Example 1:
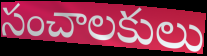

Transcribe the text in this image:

సంచాలకులు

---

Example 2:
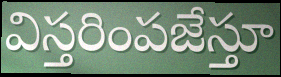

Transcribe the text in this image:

విస్తరింపజేస్తూ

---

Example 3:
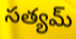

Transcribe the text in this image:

సత్యమ్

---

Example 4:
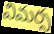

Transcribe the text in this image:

విమర్స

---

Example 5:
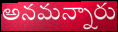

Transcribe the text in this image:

అనమన్నారు